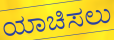
ಯಾಚಿಸಲು